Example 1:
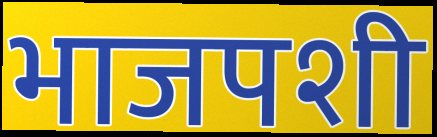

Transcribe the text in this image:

भाजपशी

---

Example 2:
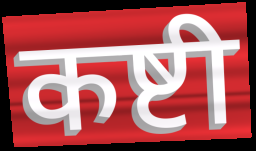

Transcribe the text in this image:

कष्टी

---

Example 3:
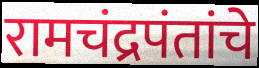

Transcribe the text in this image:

रामचंद्रपंतांचे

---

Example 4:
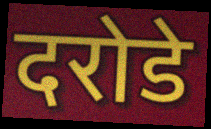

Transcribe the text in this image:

दरोडे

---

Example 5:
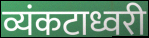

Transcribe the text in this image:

व्यंकटाध्वरी